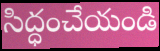
సిద్ధంచేయండి